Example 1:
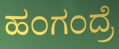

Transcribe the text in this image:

ಹಂಗಂದ್ರೆ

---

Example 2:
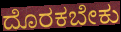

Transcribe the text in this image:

ದೊರಕಬೇಕು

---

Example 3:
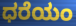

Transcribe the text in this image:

ಧರೆಯಂ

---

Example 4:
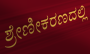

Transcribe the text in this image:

ಶ್ರೇಣೀಕರಣದಲ್ಲಿ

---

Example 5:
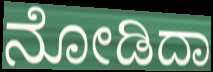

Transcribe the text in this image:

ನೋಡಿದಾ